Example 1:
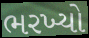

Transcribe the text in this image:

ભરખ્યો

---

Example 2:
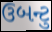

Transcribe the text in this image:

ઉબન્ટુ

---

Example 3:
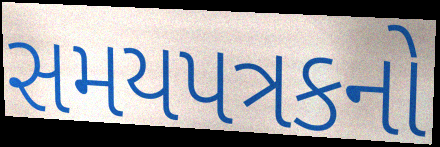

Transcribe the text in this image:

સમયપત્રકનો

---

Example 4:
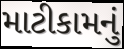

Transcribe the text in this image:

માટીકામનું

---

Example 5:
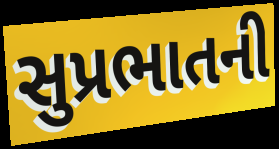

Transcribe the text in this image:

સુપ્રભાતની